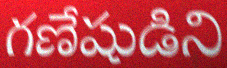
గణేషుడిని